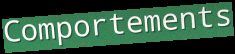
Comportements